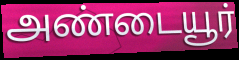
அண்டையூர்